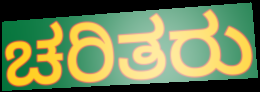
ಚರಿತರು